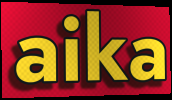
aika